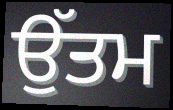
ਉੱਤਮ